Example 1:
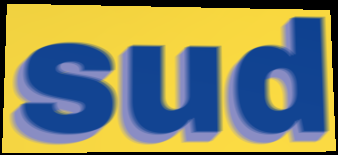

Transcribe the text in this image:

sud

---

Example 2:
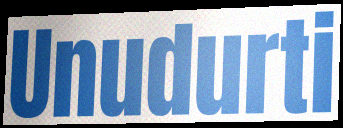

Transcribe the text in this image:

Unudurti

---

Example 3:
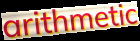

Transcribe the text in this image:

arithmetic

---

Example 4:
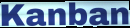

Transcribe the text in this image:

Kanban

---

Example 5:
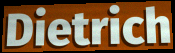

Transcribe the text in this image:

Dietrich